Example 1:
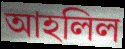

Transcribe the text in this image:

আহলিল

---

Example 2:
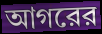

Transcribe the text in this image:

আগরের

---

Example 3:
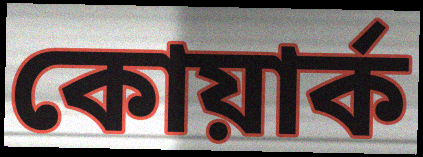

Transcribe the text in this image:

কোয়ার্ক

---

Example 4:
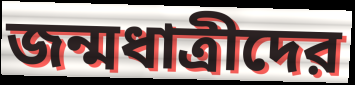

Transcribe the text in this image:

জন্মধাত্রীদের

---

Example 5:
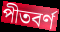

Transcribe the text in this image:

পীতবর্ণ